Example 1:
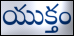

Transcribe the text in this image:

యుక్తం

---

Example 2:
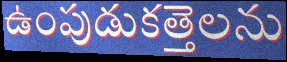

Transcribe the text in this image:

ఉంపుడుకత్తెలను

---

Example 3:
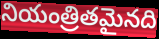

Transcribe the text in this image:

నియంత్రితమైనది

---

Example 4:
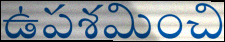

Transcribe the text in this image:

ఉపశమించి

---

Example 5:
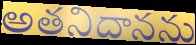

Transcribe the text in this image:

అతనిదానను